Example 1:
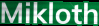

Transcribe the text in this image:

Mikloth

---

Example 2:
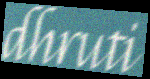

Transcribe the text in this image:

dhruti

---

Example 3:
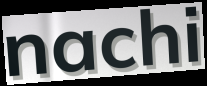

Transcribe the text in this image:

nachi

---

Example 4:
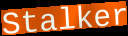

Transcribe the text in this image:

Stalker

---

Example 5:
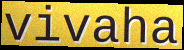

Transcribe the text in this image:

vivaha